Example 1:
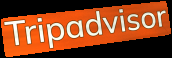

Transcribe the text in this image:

Tripadvisor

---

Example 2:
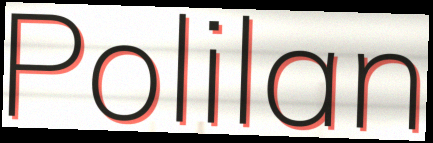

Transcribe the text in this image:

Polilan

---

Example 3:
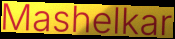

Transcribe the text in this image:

Mashelkar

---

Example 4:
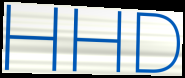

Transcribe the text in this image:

HHD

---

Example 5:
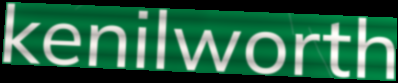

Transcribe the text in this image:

kenilworth